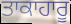
ਤਾਕਾਹਾਰੂ